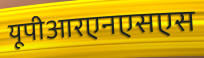
यूपीआरएनएसएस